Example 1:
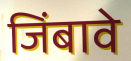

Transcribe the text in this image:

जिंबावे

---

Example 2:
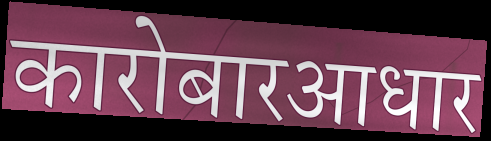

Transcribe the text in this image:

कारोबारआधार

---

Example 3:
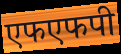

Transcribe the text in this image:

एफएफपी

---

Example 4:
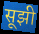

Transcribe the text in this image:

सूझी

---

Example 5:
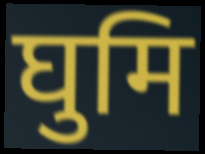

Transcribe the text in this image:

घुमि